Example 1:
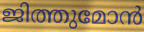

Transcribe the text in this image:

ജിത്തുമോൻ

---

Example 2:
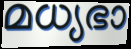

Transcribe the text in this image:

മധ്യഭാ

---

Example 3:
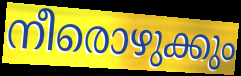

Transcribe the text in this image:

നീരൊഴുക്കും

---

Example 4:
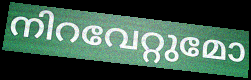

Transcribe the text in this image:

നിറവേറ്റുമോ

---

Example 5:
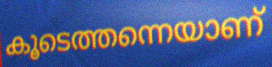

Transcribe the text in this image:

കൂടെത്തന്നെയാണ്